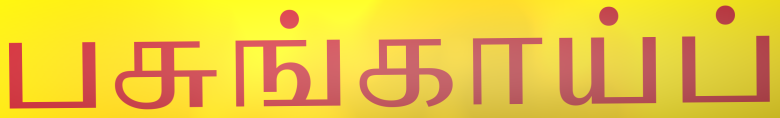
பசுங்காய்ப்